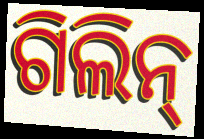
ଗିଲିନ୍